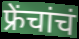
फ्रेंचांचं